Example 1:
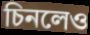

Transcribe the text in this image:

চিনলেও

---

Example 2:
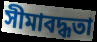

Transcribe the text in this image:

সীমাবদ্ধতা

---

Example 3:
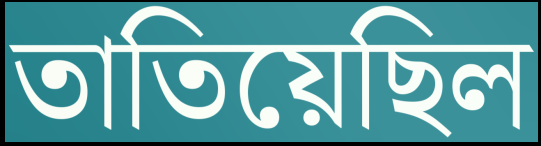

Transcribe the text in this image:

তাতিয়েছিল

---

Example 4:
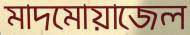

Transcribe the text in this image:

মাদমোয়াজেল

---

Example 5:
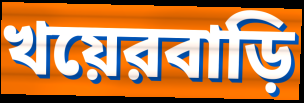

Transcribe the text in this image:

খয়েরবাড়ি